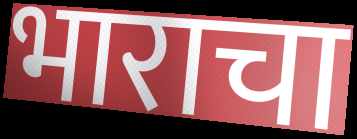
भाराचा